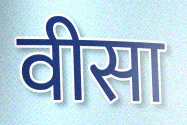
वीसा